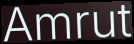
Amrut